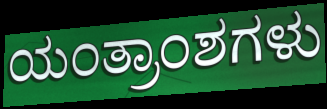
ಯಂತ್ರಾಂಶಗಳು